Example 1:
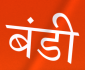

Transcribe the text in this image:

बंडी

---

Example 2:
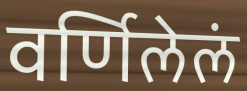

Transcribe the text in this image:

वर्णिलेलं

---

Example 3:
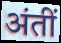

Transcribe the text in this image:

अंतीं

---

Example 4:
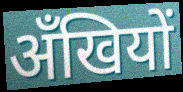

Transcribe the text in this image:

अँखियों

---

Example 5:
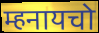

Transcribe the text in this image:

म्हनायचो